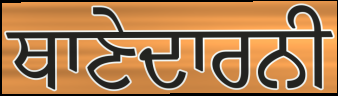
ਥਾਣੇਦਾਰਨੀ